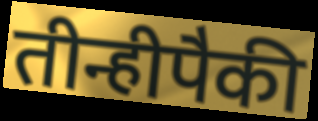
तीन्हीपैकी